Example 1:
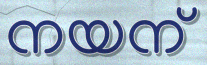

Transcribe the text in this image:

നയന്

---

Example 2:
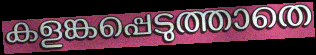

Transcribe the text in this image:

കളങ്കപ്പെടുത്താതെ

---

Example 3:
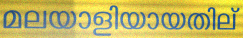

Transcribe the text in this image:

മലയാളിയായതില്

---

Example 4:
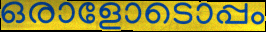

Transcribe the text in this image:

ഒരാളോടൊപ്പം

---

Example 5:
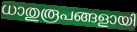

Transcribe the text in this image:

ധാതുരൂപങ്ങളായി